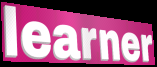
learner